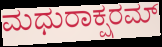
ಮಧುರಾಕ್ಷರಮ್